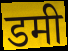
डमी